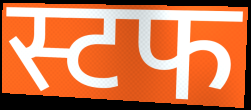
स्टफ